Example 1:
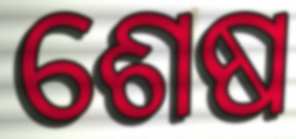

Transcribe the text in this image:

ଶେଷ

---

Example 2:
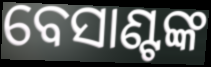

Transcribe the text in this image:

ବେସାଣ୍ଟଙ୍କ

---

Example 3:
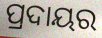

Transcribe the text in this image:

ପ୍ରଦାୟର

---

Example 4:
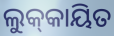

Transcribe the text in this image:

ଲୁକ୍‌କାୟିତ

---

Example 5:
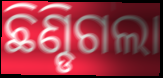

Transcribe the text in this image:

ଛିଣ୍ଡିଗଲା